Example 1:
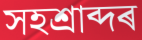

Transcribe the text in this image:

সহশ্ৰাব্দৰ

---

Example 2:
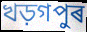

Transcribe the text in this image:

খড়গপুৰ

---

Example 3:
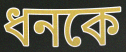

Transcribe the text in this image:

ধনকে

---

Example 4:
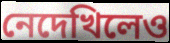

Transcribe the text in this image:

নেদেখিলেও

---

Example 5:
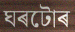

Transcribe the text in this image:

ঘৰটোৰ